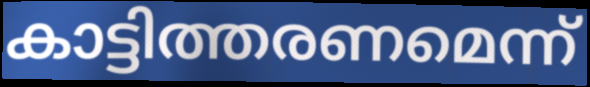
കാട്ടിത്തരണമെന്ന്